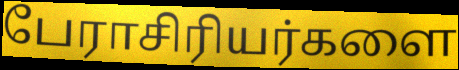
பேராசிரியர்களை